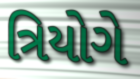
ત્રિયોગે